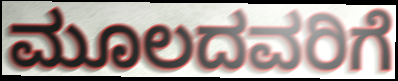
ಮೂಲದವರಿಗೆ